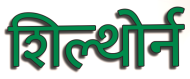
शिल्थोर्न